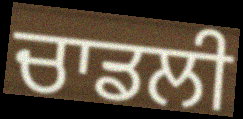
ਚਾਡਲੀ